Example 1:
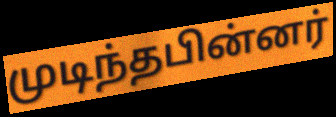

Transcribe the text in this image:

முடிந்தபின்னர்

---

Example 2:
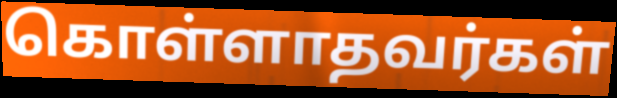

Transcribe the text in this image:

கொள்ளாதவர்கள்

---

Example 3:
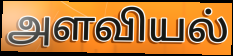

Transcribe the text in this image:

அளவியல்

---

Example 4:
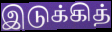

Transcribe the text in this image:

இடுக்கித்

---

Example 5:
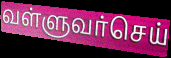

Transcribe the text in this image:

வள்ளுவர்செய்